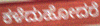
ಕಳೆದುಹೋದರೆ